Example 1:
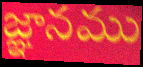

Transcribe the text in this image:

జ్ఞానము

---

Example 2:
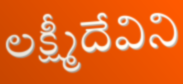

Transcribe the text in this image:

లక్ష్మీదేవిని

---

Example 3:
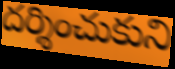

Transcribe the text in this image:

దర్శించుకుని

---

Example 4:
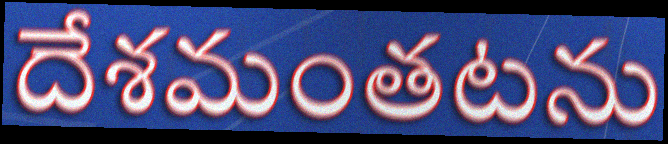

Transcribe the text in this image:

దేశమంతటను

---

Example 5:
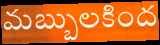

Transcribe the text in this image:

మబ్బులకింద